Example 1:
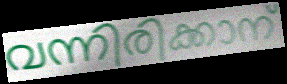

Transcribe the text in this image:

വന്നിരിക്കാന്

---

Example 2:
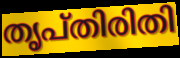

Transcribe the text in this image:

തൃപ്തിരിതി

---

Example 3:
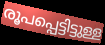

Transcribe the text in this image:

രൂപപ്പെട്ടിട്ടുള്ള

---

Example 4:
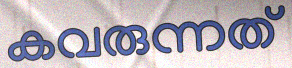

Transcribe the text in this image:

കവരുന്നത്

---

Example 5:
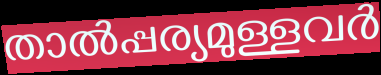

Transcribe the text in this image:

താൽപ്പര്യമുള്ളവർ